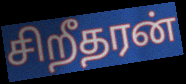
சிறீதரன்